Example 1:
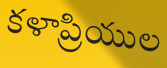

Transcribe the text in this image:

కళాప్రియుల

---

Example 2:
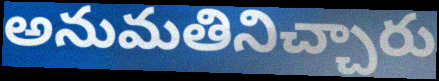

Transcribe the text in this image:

అనుమతినిచ్చారు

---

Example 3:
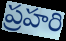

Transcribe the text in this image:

ప్రహరి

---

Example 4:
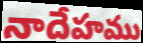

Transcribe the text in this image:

నాదేహము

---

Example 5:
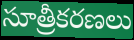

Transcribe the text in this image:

సూత్రీకరణలు